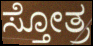
ಸ್ತೋತ್ರ